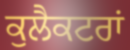
ਕੁਲੈਕਟਰਾਂ